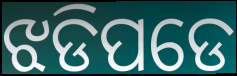
ଝଡିପଡେ